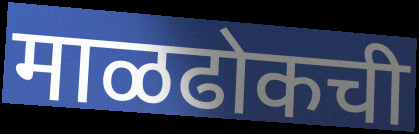
माळढोकची